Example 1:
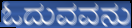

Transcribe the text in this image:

ಓದುವವನು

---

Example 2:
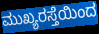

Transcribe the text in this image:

ಮುಖ್ಯರಸ್ತೆಯಿಂದ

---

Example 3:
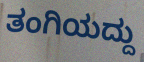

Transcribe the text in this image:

ತಂಗಿಯದ್ದು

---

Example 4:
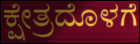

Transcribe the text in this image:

ಕ್ಷೇತ್ರದೊಳಗೆ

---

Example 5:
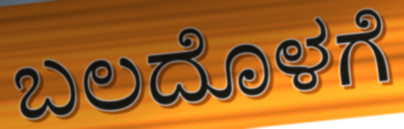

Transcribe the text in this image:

ಬಲದೊಳಗೆ